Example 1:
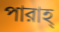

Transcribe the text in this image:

পারাহ্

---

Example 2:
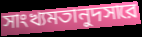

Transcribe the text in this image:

সাংখ্যমতানুদসারে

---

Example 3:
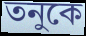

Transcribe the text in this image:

তনুকে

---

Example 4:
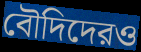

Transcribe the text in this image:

বৌদিদেরও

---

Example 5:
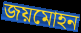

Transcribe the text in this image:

জয়মোহন